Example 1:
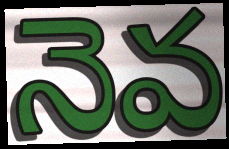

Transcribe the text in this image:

నెవ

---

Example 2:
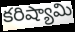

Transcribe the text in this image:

కరిష్యామి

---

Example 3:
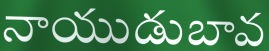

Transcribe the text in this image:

నాయుడుబావ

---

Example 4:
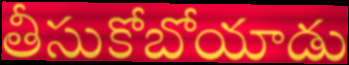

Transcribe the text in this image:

తీసుకోబోయాడు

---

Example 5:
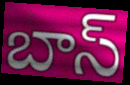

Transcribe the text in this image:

బాస్